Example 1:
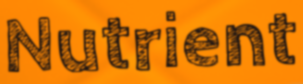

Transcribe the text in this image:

Nutrient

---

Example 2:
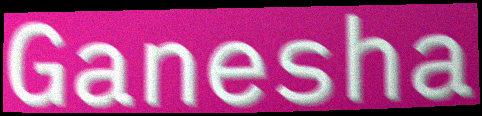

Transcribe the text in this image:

Ganesha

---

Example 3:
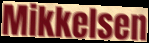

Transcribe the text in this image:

Mikkelsen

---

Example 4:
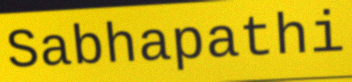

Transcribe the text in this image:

Sabhapathi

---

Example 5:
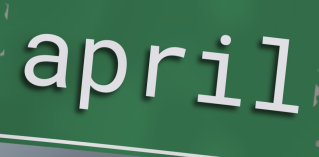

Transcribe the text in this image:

april